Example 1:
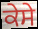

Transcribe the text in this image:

ਕੇਸੇ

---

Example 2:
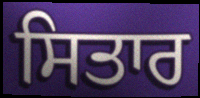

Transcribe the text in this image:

ਸਿਤਾਰ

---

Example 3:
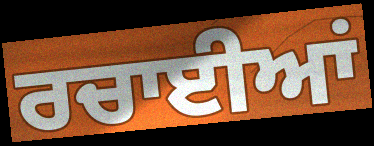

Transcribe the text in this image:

ਰਚਾਈਆਂ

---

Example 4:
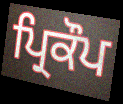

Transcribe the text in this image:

ਪ੍ਰਿਕੌਪ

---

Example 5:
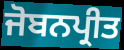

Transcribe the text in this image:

ਜੋਬਨਪ੍ਰੀਤ